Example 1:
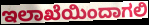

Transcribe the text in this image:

ಇಲಾಖೆಯಿಂದಾಗಲಿ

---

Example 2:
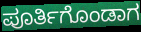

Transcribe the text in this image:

ಪೂರ್ತಿಗೊಂಡಾಗ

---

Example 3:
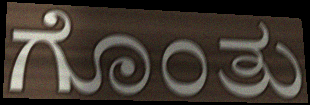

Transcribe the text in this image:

ಗೊಂತು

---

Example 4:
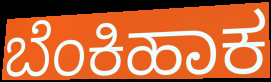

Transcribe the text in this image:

ಬೆಂಕಿಹಾಕ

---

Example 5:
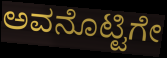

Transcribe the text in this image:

ಅವನೊಟ್ಟಿಗೇ